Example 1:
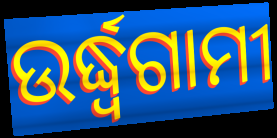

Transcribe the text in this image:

ଉର୍ଦ୍ଧ୍ୱଗାମୀ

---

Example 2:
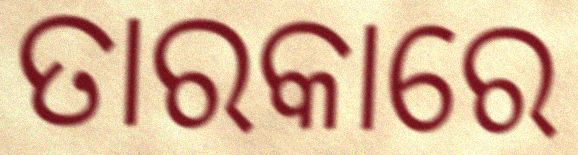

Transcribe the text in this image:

ତାରକାରେ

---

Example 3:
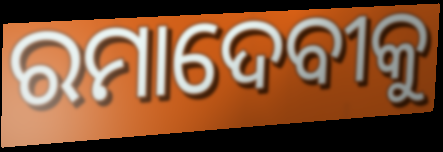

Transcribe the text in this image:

ରମାଦେବୀକୁ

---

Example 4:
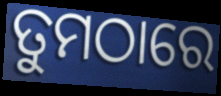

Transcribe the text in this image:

ତୁମଠାରେ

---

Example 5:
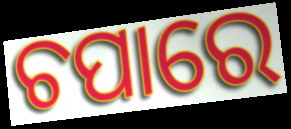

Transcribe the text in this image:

ଚପାରେ